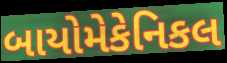
બાયોમેકેનિકલ